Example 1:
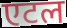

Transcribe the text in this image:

एटल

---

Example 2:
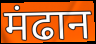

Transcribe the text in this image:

मंढान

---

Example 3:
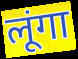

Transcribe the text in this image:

लूंगा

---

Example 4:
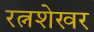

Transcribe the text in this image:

रत्नशेखर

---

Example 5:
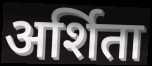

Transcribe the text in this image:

अर्शिता